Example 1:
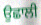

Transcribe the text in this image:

ਉਛਾਲੀ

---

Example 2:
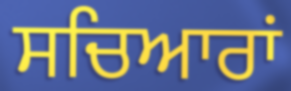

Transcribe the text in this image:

ਸਚਿਆਰਾਂ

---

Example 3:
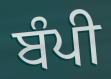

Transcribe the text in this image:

ਬੰਪੀ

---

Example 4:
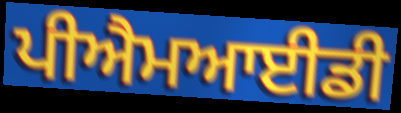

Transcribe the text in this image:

ਪੀਐਮਆਈਡੀ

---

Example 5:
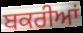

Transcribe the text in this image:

ਬਕਰੀਆਂ